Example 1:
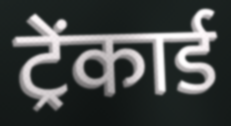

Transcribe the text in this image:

ट्रेंकार्ड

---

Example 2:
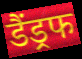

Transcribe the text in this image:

डैंड्रफ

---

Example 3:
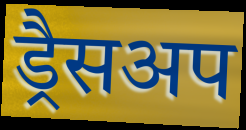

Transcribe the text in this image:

ड्रैसअप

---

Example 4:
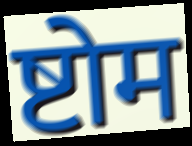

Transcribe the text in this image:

ष्टोम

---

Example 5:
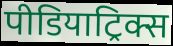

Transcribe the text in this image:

पीडियाट्रिक्स